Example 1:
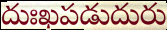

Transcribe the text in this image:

దుఃఖపడుదురు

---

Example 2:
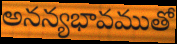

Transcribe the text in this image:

అనన్యభావముతో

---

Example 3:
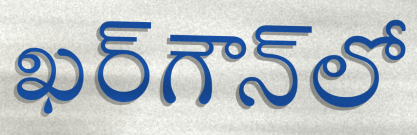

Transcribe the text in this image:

ఖర్‌గౌన్‌లో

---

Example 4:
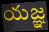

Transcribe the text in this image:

యజ్ఞ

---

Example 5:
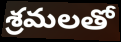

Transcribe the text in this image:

శ్రమలతో